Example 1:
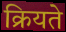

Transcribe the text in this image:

क्रियते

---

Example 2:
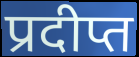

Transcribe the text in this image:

प्रदीप्त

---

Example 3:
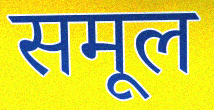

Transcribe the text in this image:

समूल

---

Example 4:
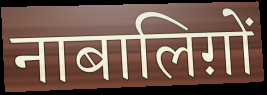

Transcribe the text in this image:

नाबालिग़ों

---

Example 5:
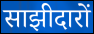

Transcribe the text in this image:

साझीदारों